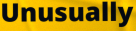
Unusually